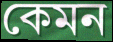
কেমন